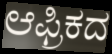
ಆಫ್ರಿಕದ